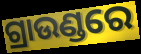
ଗ୍ରାଉଣ୍ଡରେ